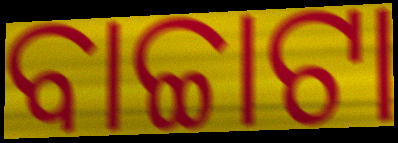
ବାଚ୍ଚାଟା